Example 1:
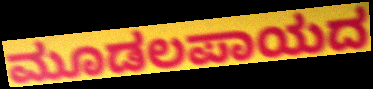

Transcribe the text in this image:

ಮೂಡಲಪಾಯದ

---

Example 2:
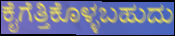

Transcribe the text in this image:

ಕೈಗೆತ್ತಿಕೊಳ್ಳಬಹುದು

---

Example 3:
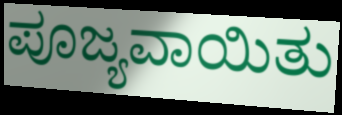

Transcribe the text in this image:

ಪೂಜ್ಯವಾಯಿತು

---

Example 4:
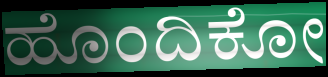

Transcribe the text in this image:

ಹೊಂದಿಕೋ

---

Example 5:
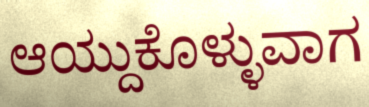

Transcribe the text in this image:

ಆಯ್ದುಕೊಳ್ಳುವಾಗ